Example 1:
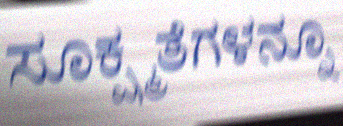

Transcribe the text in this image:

ಸೂಕ್ಷ್ಮತೆಗಳನ್ನೂ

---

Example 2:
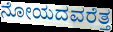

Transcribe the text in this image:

ನೋಯದವರೆತ್ತ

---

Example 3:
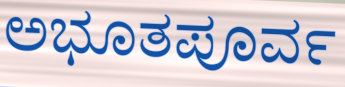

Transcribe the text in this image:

ಅಭೂತಪೂರ್ವ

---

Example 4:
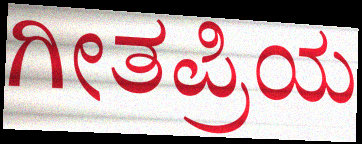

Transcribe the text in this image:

ಗೀತಪ್ರಿಯ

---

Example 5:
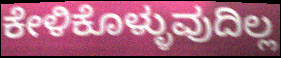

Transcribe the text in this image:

ಕೇಳಿಕೊಳ್ಳುವುದಿಲ್ಲ